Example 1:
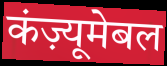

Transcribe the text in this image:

कंज़्यूमेबल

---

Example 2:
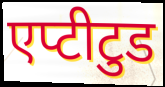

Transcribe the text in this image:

एप्टीटुड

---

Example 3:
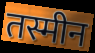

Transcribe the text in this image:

तस्मीन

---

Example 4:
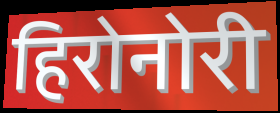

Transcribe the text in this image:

हिरोनोरी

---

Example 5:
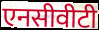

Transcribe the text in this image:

एनसीवीटी